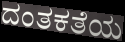
ದಂತಕತೆಯ